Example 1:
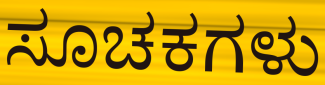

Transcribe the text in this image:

ಸೂಚಕಗಳು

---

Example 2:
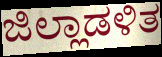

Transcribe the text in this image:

ಜಿಲ್ಲಾಡಳಿತ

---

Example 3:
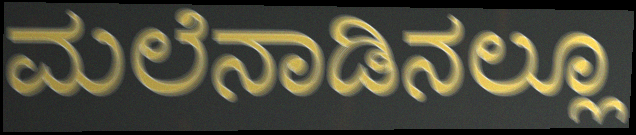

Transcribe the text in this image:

ಮಲೆನಾಡಿನಲ್ಲೂ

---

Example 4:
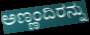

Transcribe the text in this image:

ಅಣ್ಣಂದಿರನ್ನು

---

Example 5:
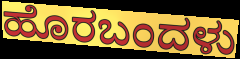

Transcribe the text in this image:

ಹೊರಬಂದಳು